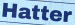
Hatter